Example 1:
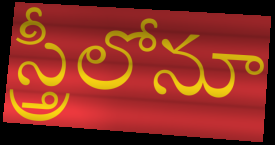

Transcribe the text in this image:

స్త్రీలోనూ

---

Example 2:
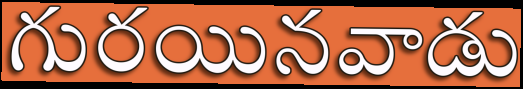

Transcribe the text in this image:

గురయినవాడు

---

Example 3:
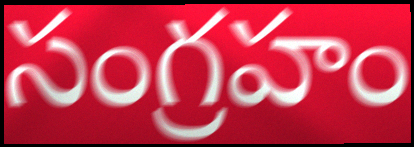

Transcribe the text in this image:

సంగ్రహం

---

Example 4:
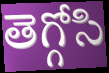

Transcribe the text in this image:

తెగ్గోసి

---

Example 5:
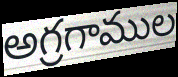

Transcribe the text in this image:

అగ్రగాముల